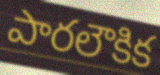
పారలౌకిక